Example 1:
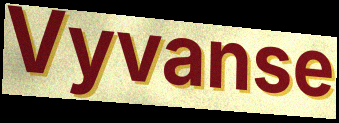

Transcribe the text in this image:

Vyvanse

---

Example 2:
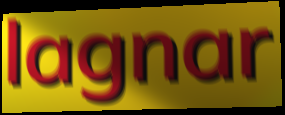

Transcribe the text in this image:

lagnar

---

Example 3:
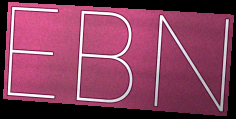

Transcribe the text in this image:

EBN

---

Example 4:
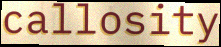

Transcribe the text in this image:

callosity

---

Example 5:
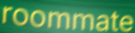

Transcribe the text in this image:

roommate